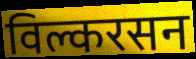
विल्करसन